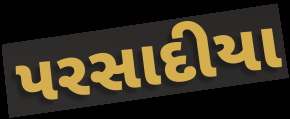
પરસાદીયા